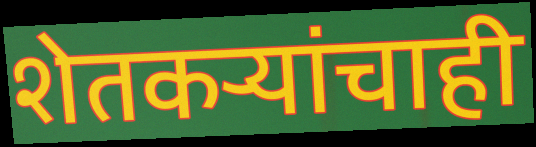
शेतकऱ्यांचाही